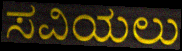
ಸವಿಯಲು